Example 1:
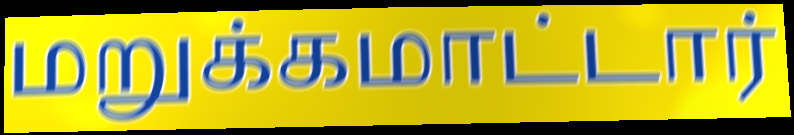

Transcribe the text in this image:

மறுக்கமாட்டார்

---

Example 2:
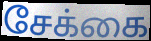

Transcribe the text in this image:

சேக்கை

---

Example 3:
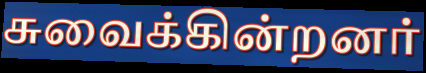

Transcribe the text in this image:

சுவைக்கின்றனர்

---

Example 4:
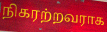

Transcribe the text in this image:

நிகரற்றவராக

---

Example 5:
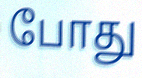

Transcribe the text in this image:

போது